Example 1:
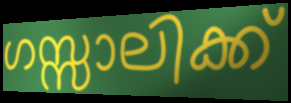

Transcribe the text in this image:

ഗസ്സാലിക്ക്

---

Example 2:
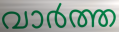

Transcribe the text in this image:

വാർത്ത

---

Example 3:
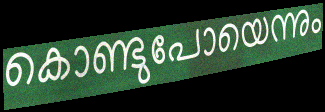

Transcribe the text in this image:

കൊണ്ടുപോയെന്നും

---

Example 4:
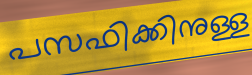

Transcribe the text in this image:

പസഫിക്കിനുള്ള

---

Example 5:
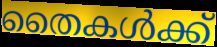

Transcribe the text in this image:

തൈകൾക്ക്